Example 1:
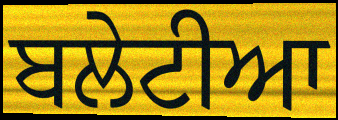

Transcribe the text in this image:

ਬਲੇਟੀਆ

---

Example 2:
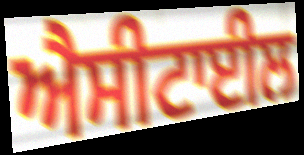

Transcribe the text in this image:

ਐਸੀਟਾਈਲ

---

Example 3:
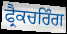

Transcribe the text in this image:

ਫ੍ਰੈਕਚਰਿੰਗ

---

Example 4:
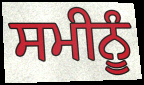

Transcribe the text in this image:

ਸਮੀਨੂੰ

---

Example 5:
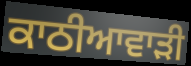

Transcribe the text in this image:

ਕਾਠੀਆਵਾੜੀ